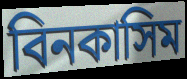
বিনকাসিম